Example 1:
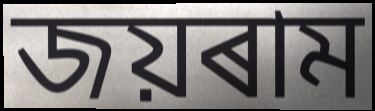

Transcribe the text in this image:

জয়ৰাম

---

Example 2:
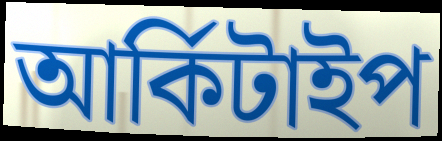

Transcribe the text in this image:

আৰ্কিটাইপ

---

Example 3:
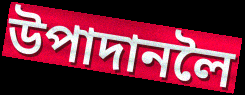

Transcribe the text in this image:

উপাদানলৈ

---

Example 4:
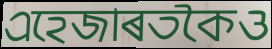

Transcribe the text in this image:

এহেজাৰতকৈও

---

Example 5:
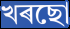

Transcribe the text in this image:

খৰছো